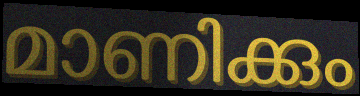
മാണിക്കും